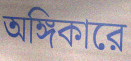
অঙ্গিকারে